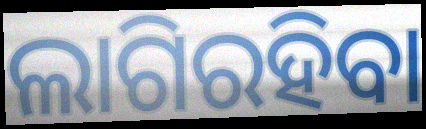
ଲାଗିରହିବା